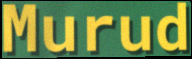
Murud